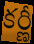
కర్ణీ